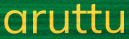
aruttu